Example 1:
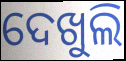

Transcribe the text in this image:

ଦେଖୁଲି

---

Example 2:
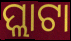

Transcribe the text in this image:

ପ୍ଲାଟା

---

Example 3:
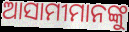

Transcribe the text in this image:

ଆସାମୀମାନଙ୍କୁ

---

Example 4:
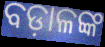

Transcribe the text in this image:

ବଡ଼ାଳଙ୍କ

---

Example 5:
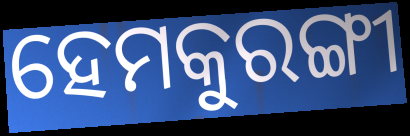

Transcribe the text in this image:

ହେମକୁରଙ୍ଗୀ